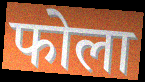
फोला